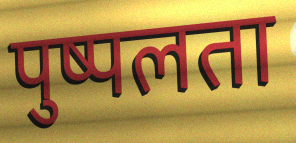
पुष्पलता